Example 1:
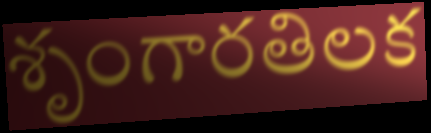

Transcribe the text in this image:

శృంగారతిలక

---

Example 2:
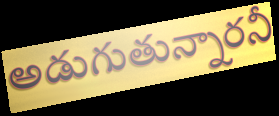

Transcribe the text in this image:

అడుగుతున్నారనీ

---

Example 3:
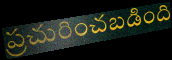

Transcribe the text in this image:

ప్రచురించబడింది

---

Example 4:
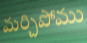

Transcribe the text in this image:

మర్చిపోము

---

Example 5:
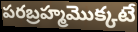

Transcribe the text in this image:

పరబ్రహ్మమొక్కటే